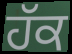
ਹੱਕ